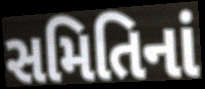
સમિતિનાં